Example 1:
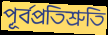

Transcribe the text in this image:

পূর্বপ্রতিশ্রুতি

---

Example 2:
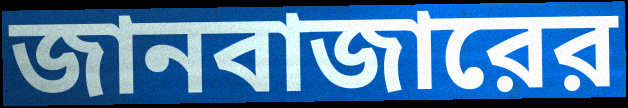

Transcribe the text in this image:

জানবাজারের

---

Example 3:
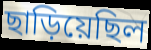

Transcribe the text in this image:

ছাড়িয়েছিল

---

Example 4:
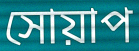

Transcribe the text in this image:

সোয়াপ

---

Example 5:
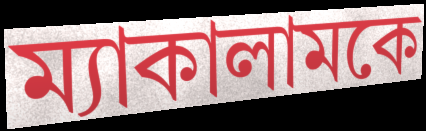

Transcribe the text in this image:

ম্যাকালামকে